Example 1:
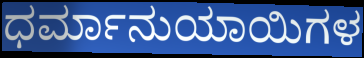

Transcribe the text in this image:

ಧರ್ಮಾನುಯಾಯಿಗಳ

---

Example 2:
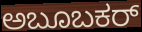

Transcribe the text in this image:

ಅಬೂಬಕರ್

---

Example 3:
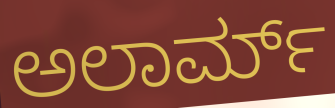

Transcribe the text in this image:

ಅಲಾರ್ಮ್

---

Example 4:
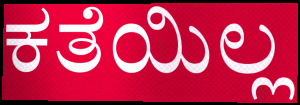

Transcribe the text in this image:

ಕತೆಯಿಲ್ಲ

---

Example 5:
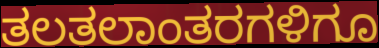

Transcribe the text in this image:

ತಲತಲಾಂತರಗಳಿಗೂ